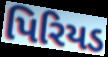
પિરિયડ